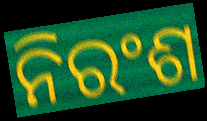
ନିରଂଶ